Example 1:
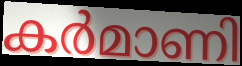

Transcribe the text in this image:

കർമാണി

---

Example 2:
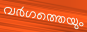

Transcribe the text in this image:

വർഗത്തെയും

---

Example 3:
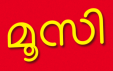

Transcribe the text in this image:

മൂസി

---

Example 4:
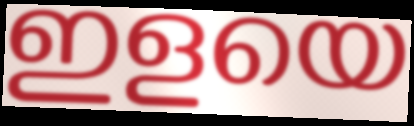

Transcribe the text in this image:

ഇളയെ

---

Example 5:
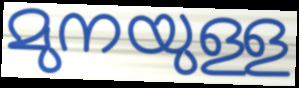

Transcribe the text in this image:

മുനയുള്ള